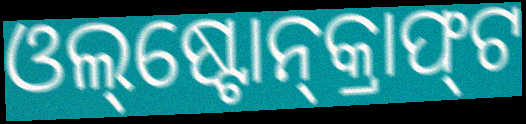
ଓଲ୍‌ଷ୍ଟୋନ୍‌କ୍ରାଫ୍‌ଟ